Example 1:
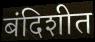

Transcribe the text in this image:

बंदिशीत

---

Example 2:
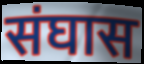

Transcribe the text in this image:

संघास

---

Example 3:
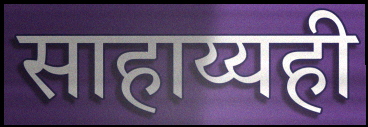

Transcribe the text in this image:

साहाय्यही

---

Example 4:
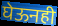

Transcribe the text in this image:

घेऊनही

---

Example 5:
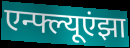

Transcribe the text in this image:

एन्फ्ल्यूएंझा